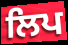
ਲਿਪ